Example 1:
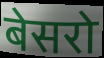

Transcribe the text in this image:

बेसरो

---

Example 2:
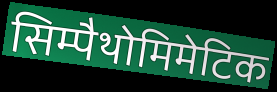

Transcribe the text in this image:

सिम्पैथोमिमेटिक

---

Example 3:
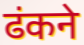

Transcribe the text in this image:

ढंकने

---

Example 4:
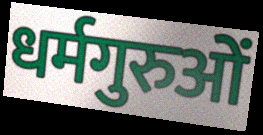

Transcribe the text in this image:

धर्मगुरुओं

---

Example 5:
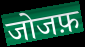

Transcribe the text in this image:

जोजफ़